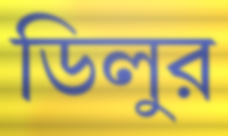
ডিলুর